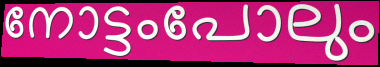
നോട്ടംപോലും